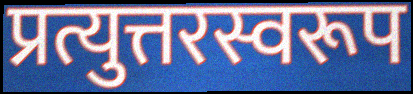
प्रत्युत्तरस्वरूप